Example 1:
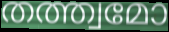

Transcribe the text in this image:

തത്ത്വമോ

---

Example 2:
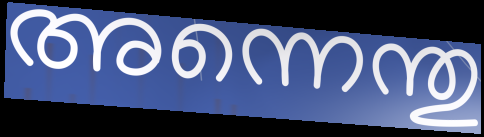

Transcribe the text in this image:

അന്നെന്തു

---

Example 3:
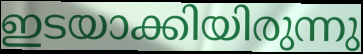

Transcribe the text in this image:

ഇടയാക്കിയിരുന്നു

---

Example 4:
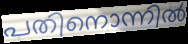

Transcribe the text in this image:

പതിനൊന്നിൽ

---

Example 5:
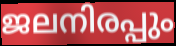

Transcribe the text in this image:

ജലനിരപ്പും